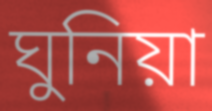
ঘুনিয়া